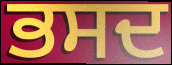
ਭਸਦ